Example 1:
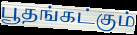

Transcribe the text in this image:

பூதங்கட்கும்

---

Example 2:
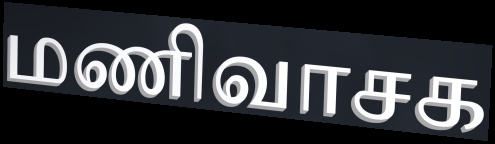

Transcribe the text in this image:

மணிவாசக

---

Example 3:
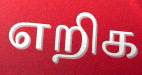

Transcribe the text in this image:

எறிக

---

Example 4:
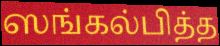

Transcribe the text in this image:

ஸங்கல்பித்த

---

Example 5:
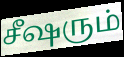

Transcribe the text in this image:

சீஷரும்